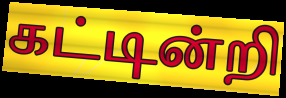
கட்டின்றி